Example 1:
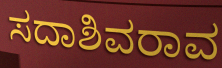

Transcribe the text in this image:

ಸದಾಶಿವರಾವ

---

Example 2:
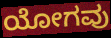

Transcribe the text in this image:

ಯೋಗವು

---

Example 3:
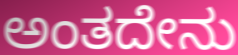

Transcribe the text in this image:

ಅಂತದೇನು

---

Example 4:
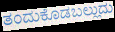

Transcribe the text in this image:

ತಂದುಕೊಡಬಲ್ಲುದು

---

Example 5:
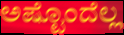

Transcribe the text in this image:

ಅಷ್ಟೊಂದೆಲ್ಲ